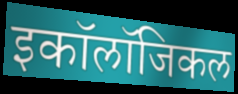
इकॉलॉजिकल